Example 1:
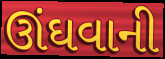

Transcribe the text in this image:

ઊંઘવાની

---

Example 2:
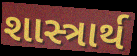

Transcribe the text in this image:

શાસ્ત્રાર્થ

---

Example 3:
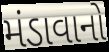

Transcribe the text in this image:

મંડાવાનો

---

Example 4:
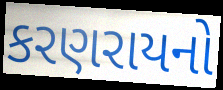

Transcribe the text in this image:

કરણરાયનો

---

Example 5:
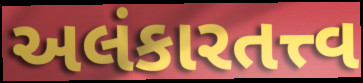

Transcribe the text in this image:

અલંકારતત્ત્વ